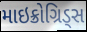
માઇક્રોગ્રિડ્સ